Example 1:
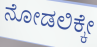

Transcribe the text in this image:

ನೋಡಲಿಕ್ಕೇ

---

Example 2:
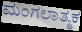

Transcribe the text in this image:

ಮಂಗಲಾತ್ಮಕ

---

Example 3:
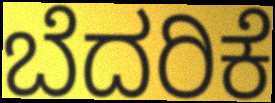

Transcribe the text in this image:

ಬೆದರಿಕೆ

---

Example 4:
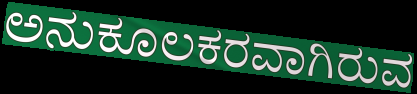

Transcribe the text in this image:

ಅನುಕೂಲಕರವಾಗಿರುವ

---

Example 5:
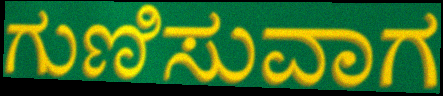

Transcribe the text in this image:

ಗುಣಿಸುವಾಗ